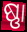
ଷ୍ଣା